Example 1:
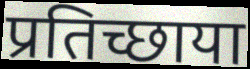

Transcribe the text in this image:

प्रतिच्छाया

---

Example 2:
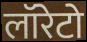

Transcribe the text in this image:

लॉरेटो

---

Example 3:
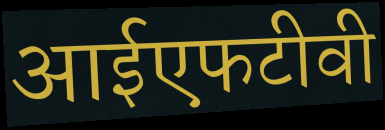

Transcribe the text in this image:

आईएफटीवी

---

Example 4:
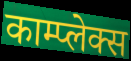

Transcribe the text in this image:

काम्प्लेक्स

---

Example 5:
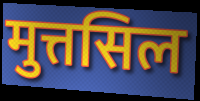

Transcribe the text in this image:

मुत्तसिल